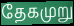
தேகமுறு